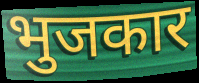
भुजकार